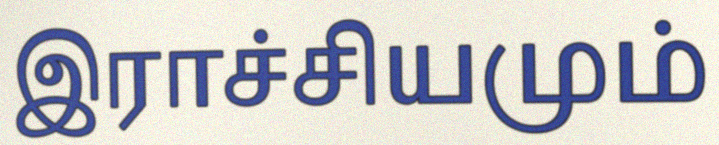
இராச்சியமும்